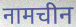
नामचीन